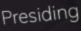
Presiding